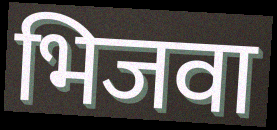
भिजवा